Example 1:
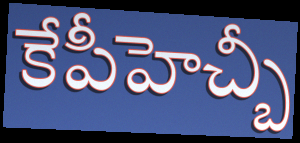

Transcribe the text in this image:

కేపీహెచ్బీ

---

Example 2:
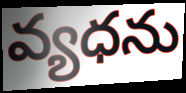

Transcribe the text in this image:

వ్యధను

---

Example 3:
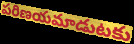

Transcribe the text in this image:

పరిణయమాడుటకు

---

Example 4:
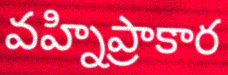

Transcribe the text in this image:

వహ్నిప్రాకార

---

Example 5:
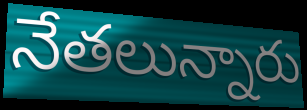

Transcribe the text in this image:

నేతలున్నారు